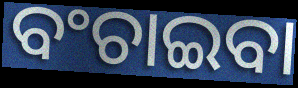
ବଂଚାଇବା